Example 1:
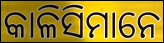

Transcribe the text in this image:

କାଳିସିମାନେ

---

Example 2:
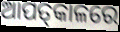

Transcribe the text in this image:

ଆପତ୍‌କାଳରେ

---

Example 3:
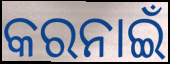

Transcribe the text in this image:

କରନାଇଁ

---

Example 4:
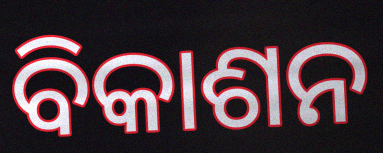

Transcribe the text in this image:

ବିକାଶନ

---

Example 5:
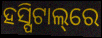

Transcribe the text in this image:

ହସ୍ପିଟାଲ୍‌ରେ